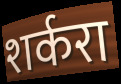
शर्करा